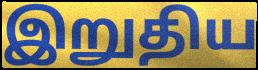
இறுதிய